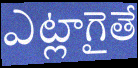
ఎట్లాగైతే